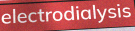
electrodialysis